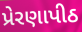
પ્રેરણાપીઠ